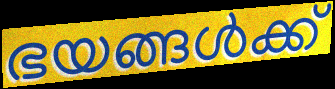
ഭയങ്ങൾക്ക്